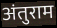
अंतुराम